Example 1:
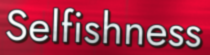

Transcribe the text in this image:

Selfishness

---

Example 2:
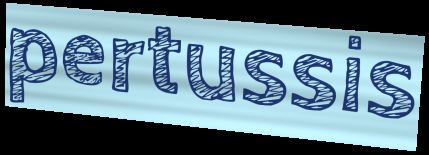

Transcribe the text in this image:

pertussis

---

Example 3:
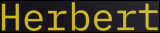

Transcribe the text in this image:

Herbert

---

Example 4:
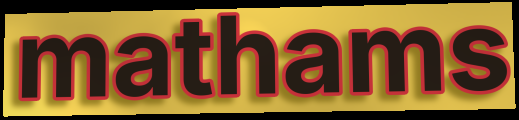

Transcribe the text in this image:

mathams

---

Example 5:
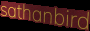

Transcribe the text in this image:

sathanbird